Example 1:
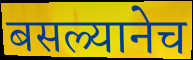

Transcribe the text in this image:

बसल्यानेच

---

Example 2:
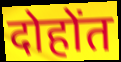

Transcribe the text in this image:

दोहोंत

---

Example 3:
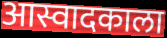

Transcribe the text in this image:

आस्वादकाला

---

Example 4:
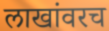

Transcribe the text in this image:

लाखांवरच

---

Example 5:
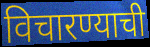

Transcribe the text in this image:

विचारण्याची